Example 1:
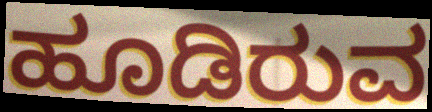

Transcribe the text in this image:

ಹೂಡಿರುವ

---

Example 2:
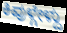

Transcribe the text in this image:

ಕಿವುಳ್ಗೇಳ್ದು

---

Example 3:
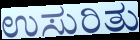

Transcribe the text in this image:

ಉಸುರಿತು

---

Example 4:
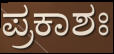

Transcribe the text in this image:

ಪ್ರಕಾಶಃ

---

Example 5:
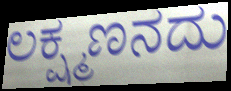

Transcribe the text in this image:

ಲಕ್ಷ್ಮಣನದು